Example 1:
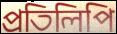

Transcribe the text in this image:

প্রতিলিপি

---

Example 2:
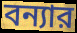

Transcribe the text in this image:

বন্যার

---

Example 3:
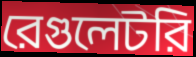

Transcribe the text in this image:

রেগুলেটরি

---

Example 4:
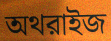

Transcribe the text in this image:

অথরাইজ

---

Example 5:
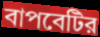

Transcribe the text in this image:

বাপবেটির